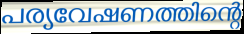
പര്യവേഷണത്തിന്റെ